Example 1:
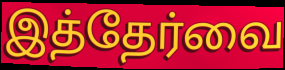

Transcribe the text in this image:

இத்தேர்வை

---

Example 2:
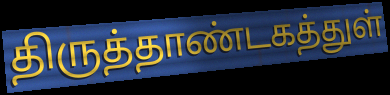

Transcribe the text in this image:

திருத்தாண்டகத்துள்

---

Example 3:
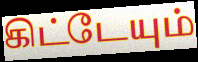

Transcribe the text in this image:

கிட்டேயும்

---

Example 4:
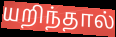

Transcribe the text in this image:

யறிந்தால்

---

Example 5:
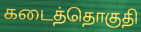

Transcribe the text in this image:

கடைத்தொகுதி